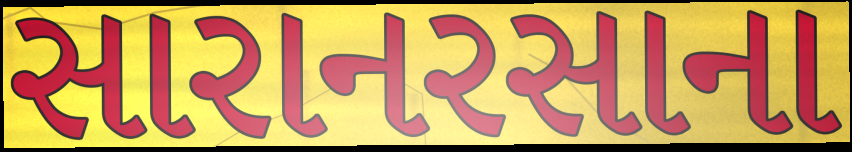
સારાનરસાના